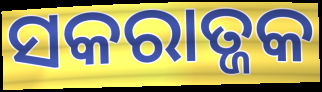
ସକରାତ୍ଜକ